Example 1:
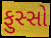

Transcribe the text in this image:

ફુસ્સો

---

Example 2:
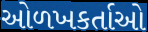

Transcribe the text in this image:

ઓળખકર્તાઓ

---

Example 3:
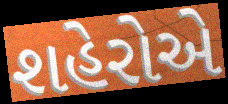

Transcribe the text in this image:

શહેરોએ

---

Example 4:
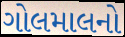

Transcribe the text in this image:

ગોલમાલનો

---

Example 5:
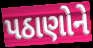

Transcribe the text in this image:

પઠાણોને